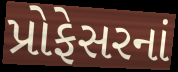
પ્રોફેસરનાં